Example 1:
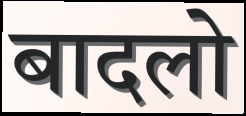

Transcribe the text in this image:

बादलो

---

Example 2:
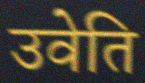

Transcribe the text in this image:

उवेति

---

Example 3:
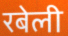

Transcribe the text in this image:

रबेली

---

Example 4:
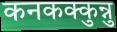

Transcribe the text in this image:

कनकक्कुन्नु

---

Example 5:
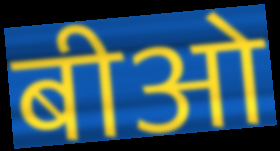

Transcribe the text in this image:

बीओ